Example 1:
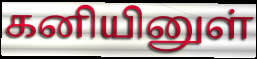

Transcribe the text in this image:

கனியினுள்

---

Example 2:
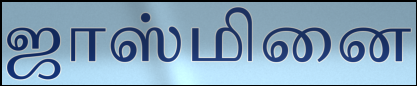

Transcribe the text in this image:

ஜாஸ்மினை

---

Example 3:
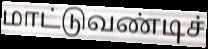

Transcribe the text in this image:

மாட்டுவண்டிச்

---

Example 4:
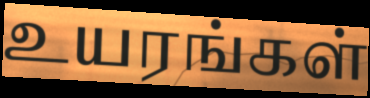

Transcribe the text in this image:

உயரங்கள்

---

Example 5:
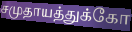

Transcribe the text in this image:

சமுதாயத்துக்கோ